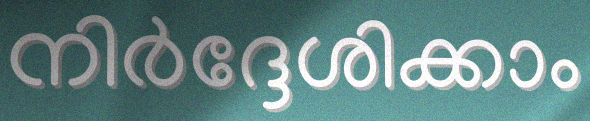
നിർദ്ദേശിക്കാം